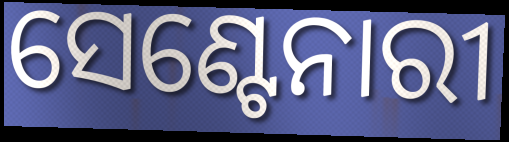
ସେଣ୍ଟେନାରୀ